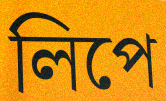
লিপে